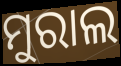
ମୁରାଲ